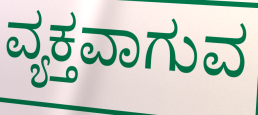
ವ್ಯಕ್ತವಾಗುವ